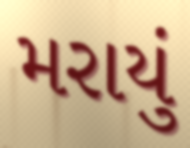
મરાયું